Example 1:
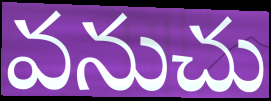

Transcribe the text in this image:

వనుచు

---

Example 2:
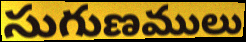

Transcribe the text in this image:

సుగుణములు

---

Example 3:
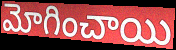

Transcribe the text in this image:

మోగించాయి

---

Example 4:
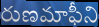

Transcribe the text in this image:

రుణమాఫీని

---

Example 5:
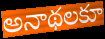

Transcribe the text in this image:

అనాథలకూ